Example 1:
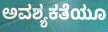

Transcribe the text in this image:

ಅವಶ್ಯಕತೆಯೂ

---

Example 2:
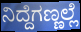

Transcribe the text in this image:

ನಿದ್ದೆಗಣ್ಣಲ್ಲೆ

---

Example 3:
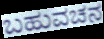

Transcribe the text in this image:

ಬಹುವಚನ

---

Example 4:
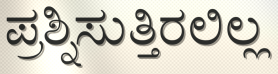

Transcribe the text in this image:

ಪ್ರಶ್ನಿಸುತ್ತಿರಲಿಲ್ಲ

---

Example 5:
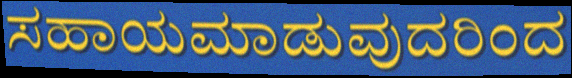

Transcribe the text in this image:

ಸಹಾಯಮಾಡುವುದರಿಂದ